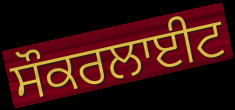
ਸੌਕਰਲਾਈਟ